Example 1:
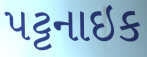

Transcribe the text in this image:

પટ્ટનાઇક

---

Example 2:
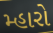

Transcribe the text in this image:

મ્હારો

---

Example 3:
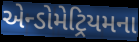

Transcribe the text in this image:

એન્ડોમેટ્રિયમના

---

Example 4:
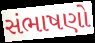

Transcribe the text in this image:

સંભાષણો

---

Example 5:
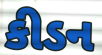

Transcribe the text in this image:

કીડન